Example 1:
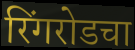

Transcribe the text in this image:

रिंगरोडचा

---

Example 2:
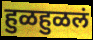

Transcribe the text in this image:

हुळहुळलं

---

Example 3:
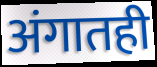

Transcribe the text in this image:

अंगातही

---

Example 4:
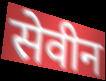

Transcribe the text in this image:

सेवीन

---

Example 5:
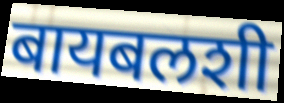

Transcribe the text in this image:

बायबलशी